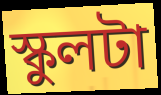
স্কুলটা